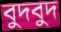
বুদবুদ